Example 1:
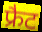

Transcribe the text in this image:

फ्रैट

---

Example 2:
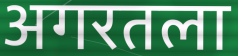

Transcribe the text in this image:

अगरतला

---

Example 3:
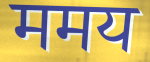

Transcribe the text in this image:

ममय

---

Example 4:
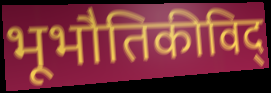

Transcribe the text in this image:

भूभौतिकीविद्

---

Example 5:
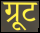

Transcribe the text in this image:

ग्रूट